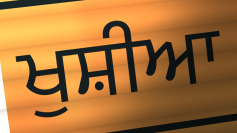
ਖੁਸ਼ੀਆ